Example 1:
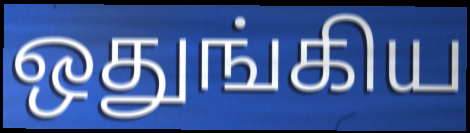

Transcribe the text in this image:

ஒதுங்கிய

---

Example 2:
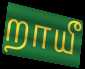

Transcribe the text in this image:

றாயீ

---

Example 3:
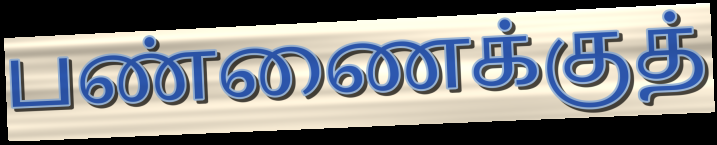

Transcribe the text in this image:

பண்ணைக்குத்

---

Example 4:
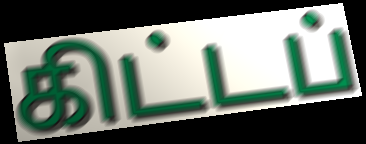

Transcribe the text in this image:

கிட்டப்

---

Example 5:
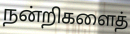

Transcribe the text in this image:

நன்றிகளைத்